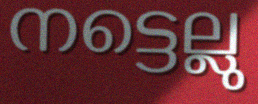
നട്ടെല്ലു